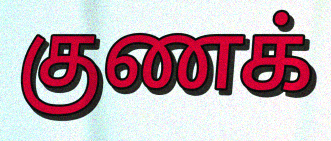
குணக்